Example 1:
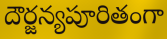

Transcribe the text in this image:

దౌర్జన్యపూరితంగా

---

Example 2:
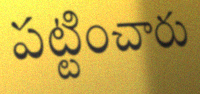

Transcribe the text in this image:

పట్టించారు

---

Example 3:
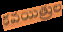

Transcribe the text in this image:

కవయిత్రుల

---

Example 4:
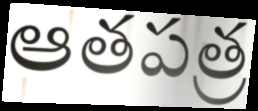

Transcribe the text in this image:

ఆతపత్ర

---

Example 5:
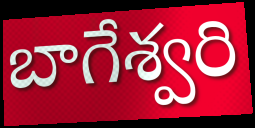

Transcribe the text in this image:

బాగేశ్వరి